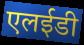
एलईडी